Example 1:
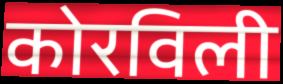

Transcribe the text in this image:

कोरविली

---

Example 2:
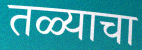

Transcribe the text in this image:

तळ्याचा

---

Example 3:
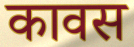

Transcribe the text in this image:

कावस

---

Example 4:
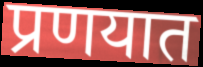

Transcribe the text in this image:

प्रणयात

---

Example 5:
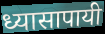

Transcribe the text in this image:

ध्यासापायी